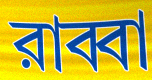
রাব্বা